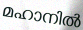
മഹാനിൽ